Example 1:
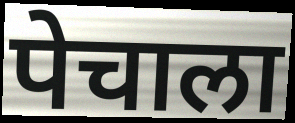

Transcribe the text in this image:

पेचाला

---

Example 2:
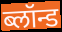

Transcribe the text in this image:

ब्लॉन्ड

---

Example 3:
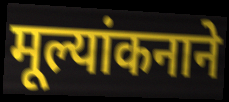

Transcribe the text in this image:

मूल्यांकनाने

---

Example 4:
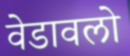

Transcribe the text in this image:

वेडावलो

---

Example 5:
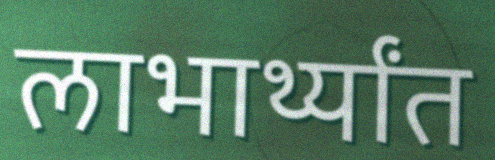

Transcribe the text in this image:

लाभार्थ्यांत